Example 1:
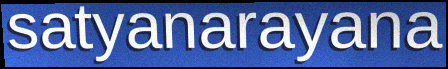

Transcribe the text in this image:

satyanarayana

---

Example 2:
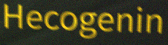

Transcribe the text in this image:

Hecogenin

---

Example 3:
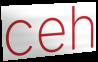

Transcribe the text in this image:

ceh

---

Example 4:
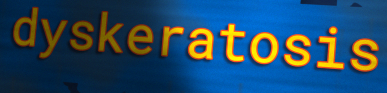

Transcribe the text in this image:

dyskeratosis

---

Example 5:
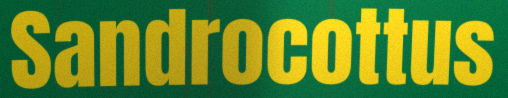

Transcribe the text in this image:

Sandrocottus